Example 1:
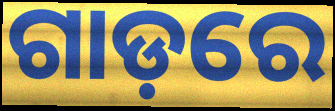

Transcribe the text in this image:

ଗାଡ଼ରେ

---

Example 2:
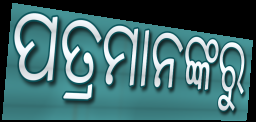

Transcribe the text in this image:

ପତ୍ରମାନଙ୍କରୁ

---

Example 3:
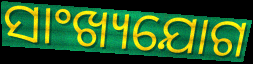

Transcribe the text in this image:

ସାଂଖ୍ଯଯୋଗ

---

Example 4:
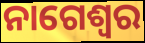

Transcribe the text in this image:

ନାଗେଶ୍ଵର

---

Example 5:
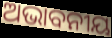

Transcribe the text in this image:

ଅଭାବନୀୟ